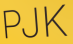
PJK